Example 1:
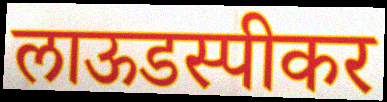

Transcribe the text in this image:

लाऊडस्पीकर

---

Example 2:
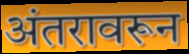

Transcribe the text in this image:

अंतरावरून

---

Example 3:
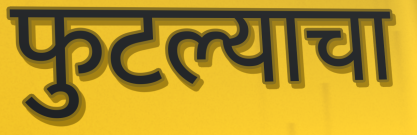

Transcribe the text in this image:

फुटल्याचा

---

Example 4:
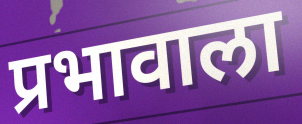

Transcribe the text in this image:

प्रभावाला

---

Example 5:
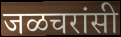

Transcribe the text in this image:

जळचरांसी